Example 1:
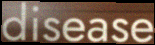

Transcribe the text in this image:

disease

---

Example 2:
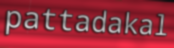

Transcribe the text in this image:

pattadakal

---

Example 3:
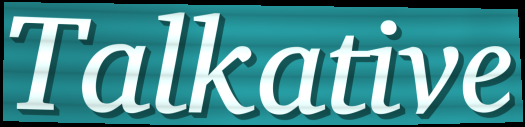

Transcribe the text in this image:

Talkative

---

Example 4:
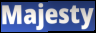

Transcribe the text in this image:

Majesty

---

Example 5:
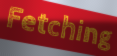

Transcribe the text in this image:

Fetching